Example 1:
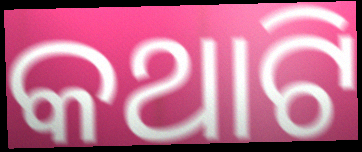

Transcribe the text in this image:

କଥାଟି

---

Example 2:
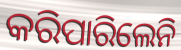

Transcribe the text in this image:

କରିପାରିଲେନି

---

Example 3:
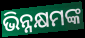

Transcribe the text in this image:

ଭିନ୍ନକ୍ଷମଙ୍କ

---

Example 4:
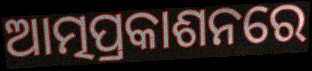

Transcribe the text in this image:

ଆତ୍ମପ୍ରକାଶନରେ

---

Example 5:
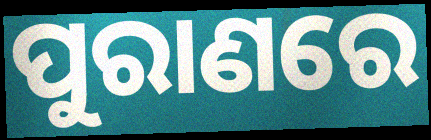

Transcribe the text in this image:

ପୁରାଣରେ